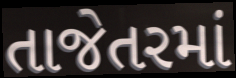
તાજેતરમાં